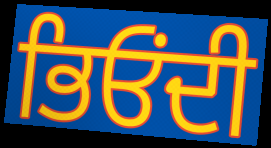
ਭਿਓਂਦੀ